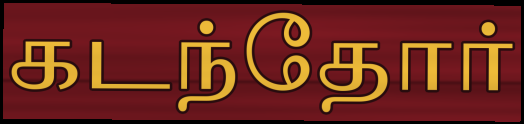
கடந்தோர்